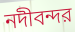
নদীবন্দর